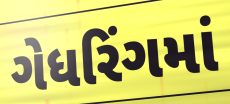
ગેધરિંગમાં